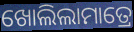
ଖୋଲିଲାମାତ୍ରେ